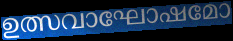
ഉത്സവാഘോഷമോ